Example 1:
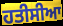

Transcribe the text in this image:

ਹਤੀਸੀਆ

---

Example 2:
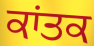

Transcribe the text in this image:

ਕਾਂਤਕ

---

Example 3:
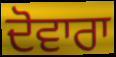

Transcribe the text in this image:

ਦੋਵਾਰਾ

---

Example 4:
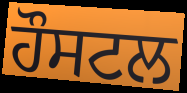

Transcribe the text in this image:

ਹੌਸਟਲ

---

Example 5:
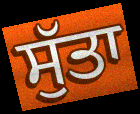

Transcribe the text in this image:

ਸੁੱਤਾ